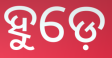
ହୁଡ଼େ